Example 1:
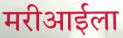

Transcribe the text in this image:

मरीआईला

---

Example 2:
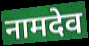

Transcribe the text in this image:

नामदेव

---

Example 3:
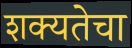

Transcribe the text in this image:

शक्यतेचा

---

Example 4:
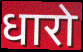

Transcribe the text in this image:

धारो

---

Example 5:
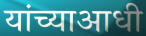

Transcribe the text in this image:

यांच्याआधी